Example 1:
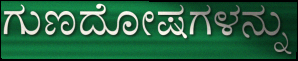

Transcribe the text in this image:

ಗುಣದೋಷಗಳನ್ನು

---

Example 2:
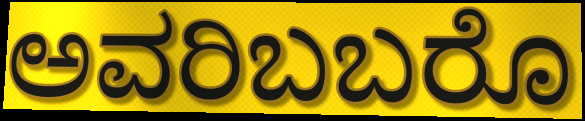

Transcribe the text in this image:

ಅವರಿಬಬರೊ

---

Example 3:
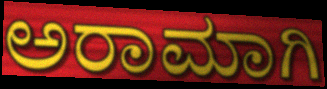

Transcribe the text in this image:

ಅರಾಮಾಗಿ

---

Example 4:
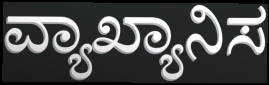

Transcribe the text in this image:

ವ್ಯಾಖ್ಯಾನಿಸ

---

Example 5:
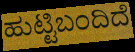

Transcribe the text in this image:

ಹುಟ್ಟಿಬಂದಿದೆ